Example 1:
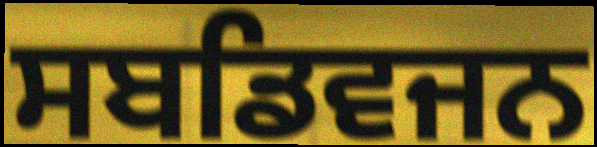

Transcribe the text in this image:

ਸਬਡਿਵਜਨ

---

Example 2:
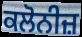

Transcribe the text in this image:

ਕਲੋਨੀਜ਼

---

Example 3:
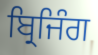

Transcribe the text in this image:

ਬ੍ਰਿਜਿੰਗ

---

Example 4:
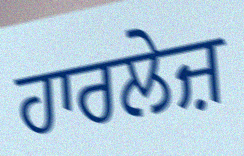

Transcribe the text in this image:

ਹਾਰਲੇਜ਼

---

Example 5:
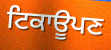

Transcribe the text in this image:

ਟਿਕਾਊਪਣ